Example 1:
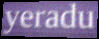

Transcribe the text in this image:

yeradu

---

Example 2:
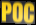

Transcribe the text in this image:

POC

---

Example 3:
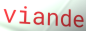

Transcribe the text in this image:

viande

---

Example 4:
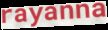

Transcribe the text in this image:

rayanna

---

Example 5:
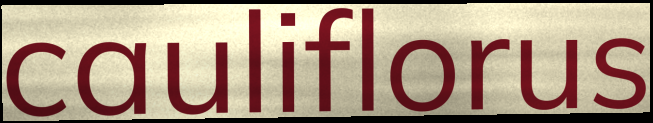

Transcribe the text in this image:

cauliflorus